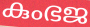
കുംഭജ